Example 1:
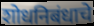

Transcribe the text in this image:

शोधनिबंधाचे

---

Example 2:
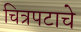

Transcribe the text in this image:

चित्रपटाचे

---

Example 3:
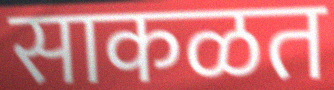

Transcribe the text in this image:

साकळत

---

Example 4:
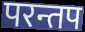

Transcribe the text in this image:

परन्तप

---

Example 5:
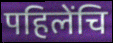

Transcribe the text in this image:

पहिलेंचि